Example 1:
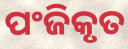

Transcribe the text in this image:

ପଂଜିକୃତ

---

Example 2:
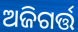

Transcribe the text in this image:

ଅଜିଗର୍ତ୍ତ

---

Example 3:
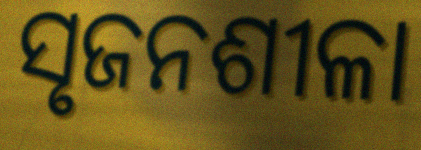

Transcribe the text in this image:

ସୃଜନଶୀଳା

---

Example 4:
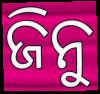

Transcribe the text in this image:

ଜିନୁ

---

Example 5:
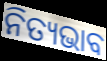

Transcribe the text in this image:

ନିତ୍ୟଭାବ